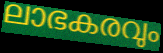
ലാഭകരവും